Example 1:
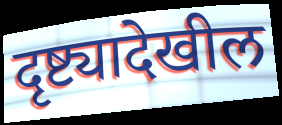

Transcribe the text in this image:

दृष्ट्यादेखील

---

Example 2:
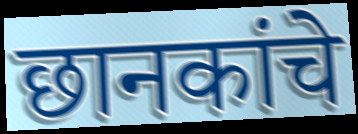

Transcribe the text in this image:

छानकांचे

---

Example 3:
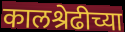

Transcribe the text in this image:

कालश्रेढीच्या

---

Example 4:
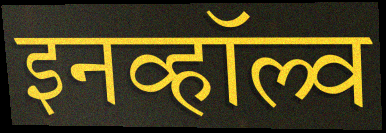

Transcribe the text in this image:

इनव्हॉल्व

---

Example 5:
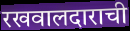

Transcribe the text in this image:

रखवालदाराची